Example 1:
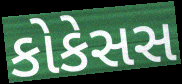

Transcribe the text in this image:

કોકેસસ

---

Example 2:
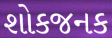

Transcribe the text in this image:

શોકજનક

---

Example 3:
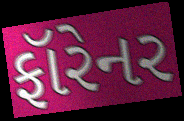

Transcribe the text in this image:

ફૉરેનર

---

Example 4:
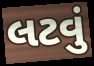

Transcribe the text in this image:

લટવું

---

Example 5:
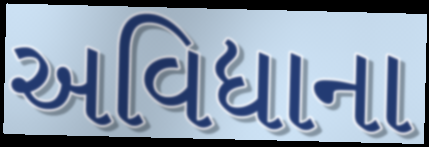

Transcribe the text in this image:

અવિદ્યાના